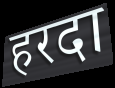
हरदा